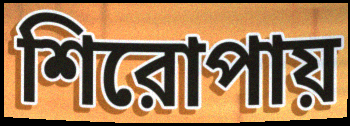
শিরোপায়